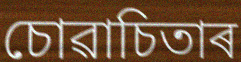
চোৱাচিতাৰ